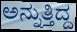
ಅನ್ನುತ್ತಿದ್ದ